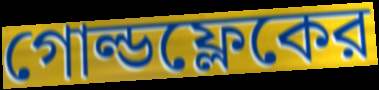
গোল্ডফ্লেকের